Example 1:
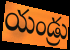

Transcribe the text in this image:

యండ్రు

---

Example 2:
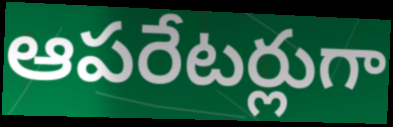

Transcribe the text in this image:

ఆపరేటర్లుగా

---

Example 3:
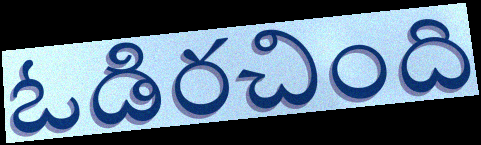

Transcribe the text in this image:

ఓడిరచింది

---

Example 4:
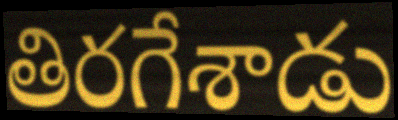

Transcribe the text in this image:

తిరగేశాడు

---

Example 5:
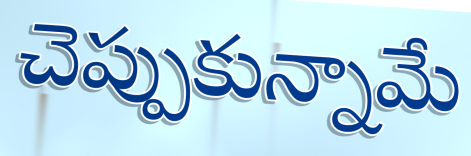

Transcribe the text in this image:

చెప్పుకున్నామే